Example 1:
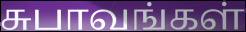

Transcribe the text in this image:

சுபாவங்கள்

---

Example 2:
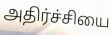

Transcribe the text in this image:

அதிர்ச்சியை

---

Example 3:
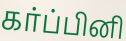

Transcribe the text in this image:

கர்ப்பினி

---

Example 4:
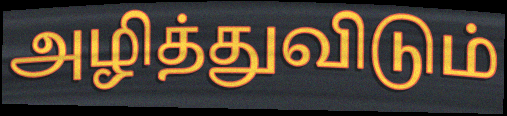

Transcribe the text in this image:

அழித்துவிடும்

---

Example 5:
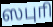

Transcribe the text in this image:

ஸபுரி